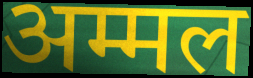
अम्मल